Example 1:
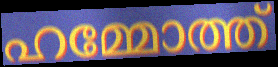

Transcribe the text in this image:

ഹമ്മോത്ത്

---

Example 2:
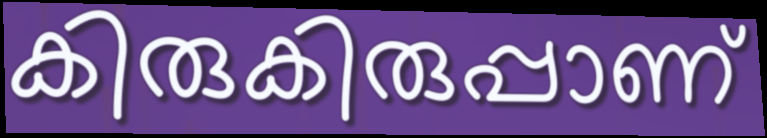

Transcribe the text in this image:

കിരുകിരുപ്പാണ്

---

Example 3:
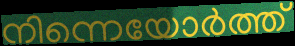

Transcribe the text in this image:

നിന്നെയോർത്ത്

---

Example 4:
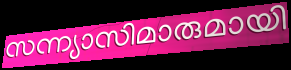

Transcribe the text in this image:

സന്ന്യാസിമാരുമായി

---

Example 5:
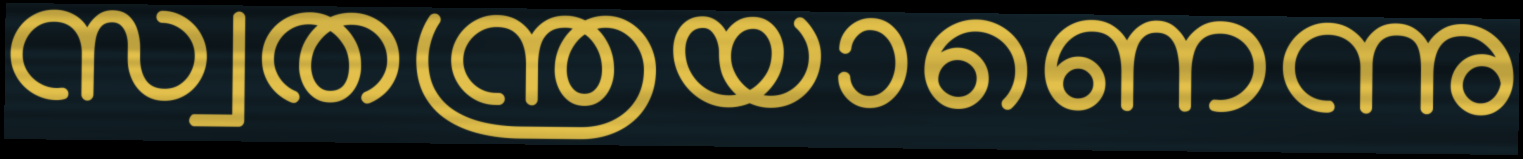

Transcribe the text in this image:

സ്വതന്ത്രയാണെന്നു